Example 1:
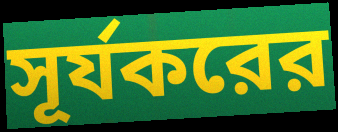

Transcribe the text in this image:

সূর্যকরের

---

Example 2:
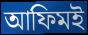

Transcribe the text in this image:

আফিমই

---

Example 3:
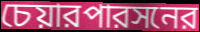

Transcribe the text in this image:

চেয়ারপারসনের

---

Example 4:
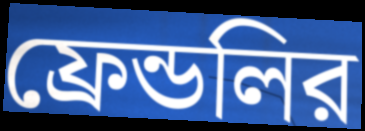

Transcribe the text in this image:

ফ্রেন্ডলির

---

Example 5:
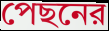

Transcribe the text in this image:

পেছনের